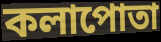
কলাপোতা